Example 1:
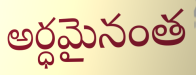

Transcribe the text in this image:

అర్ధమైనంత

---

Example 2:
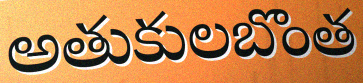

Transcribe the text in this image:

అతుకులబొంత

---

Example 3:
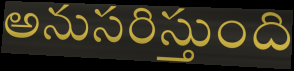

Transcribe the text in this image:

అనుసరిస్తుంది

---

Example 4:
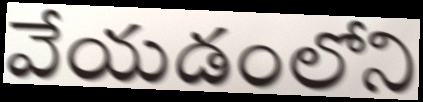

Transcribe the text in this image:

వేయడంలోని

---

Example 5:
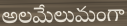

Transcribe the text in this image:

అలమేలుమంగా